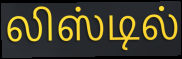
லிஸ்டில்